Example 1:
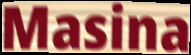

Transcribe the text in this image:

Masina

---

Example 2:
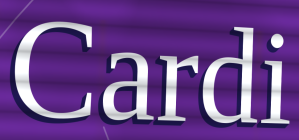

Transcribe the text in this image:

Cardi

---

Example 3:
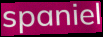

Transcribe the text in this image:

spaniel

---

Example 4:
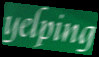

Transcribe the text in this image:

yelping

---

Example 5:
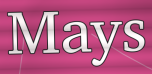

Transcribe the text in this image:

Mays